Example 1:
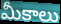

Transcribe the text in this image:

మీకాలు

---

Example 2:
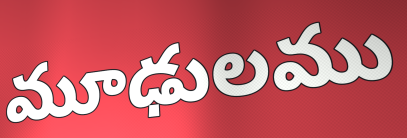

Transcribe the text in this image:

మూఢులము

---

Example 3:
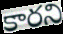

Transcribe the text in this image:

కారని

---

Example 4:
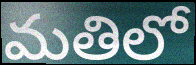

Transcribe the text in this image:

మతిలో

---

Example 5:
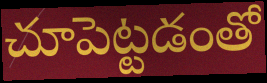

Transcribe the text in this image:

చూపెట్టడంతో